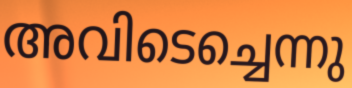
അവിടെച്ചെന്നു